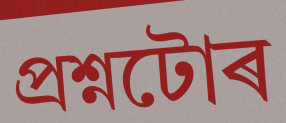
প্ৰশ্নটোৰ